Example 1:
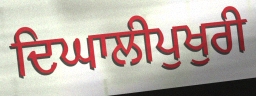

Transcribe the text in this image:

ਦਿਘਾਲੀਪੁਖੁਰੀ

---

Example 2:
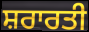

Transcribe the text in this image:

ਸ਼ਰਾਰਤੀ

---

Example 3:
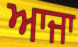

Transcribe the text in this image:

ਆਜਾ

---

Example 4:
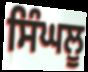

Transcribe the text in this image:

ਸਿੰਘਲੂ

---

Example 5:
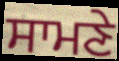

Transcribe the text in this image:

ਸਾਮਣੇ